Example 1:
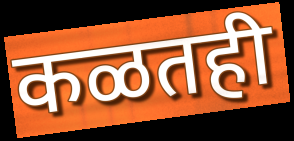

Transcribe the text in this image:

कळतही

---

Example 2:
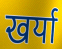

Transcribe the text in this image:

खर्या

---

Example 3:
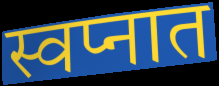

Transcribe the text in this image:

स्वप्नात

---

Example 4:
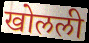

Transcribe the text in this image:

खोलली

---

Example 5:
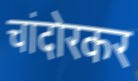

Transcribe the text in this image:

चांदोरकर